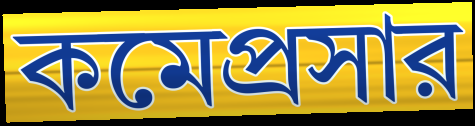
কমেপ্রসার